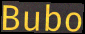
Bubo